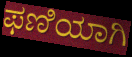
ಫಣಿಯಾಗಿ